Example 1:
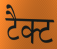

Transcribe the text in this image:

टैक्ट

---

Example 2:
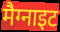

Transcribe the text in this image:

मैग्नाइट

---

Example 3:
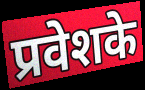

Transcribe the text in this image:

प्रवेशके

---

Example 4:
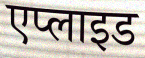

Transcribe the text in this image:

एप्लाइड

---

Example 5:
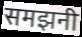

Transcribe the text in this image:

समझनी